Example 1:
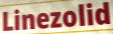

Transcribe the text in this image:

Linezolid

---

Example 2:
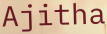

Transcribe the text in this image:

Ajitha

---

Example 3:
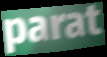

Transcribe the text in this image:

parat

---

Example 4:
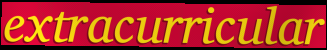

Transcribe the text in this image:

extracurricular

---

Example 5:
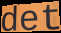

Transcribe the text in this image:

det